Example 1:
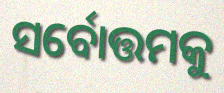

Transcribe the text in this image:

ସର୍ବୋତ୍ତମକୁ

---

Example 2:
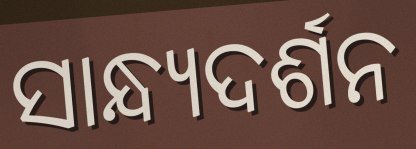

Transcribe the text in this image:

ସାନ୍ଧ୍ୟଦର୍ଶନ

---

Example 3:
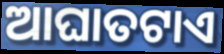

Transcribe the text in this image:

ଆଘାତଟାଏ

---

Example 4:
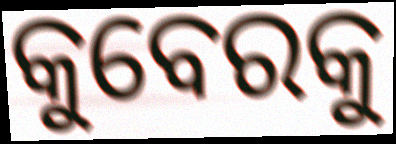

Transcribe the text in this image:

କୁବେରକୁ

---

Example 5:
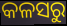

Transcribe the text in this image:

କଳସରୁ